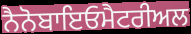
ਨੈਨੋਬਾਇਓਮੈਟਰੀਅਲ